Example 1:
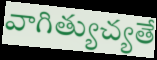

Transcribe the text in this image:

వాగిత్యుచ్యతే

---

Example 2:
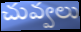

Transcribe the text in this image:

చువ్వలు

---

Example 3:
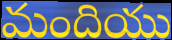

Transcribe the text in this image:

మందియు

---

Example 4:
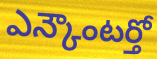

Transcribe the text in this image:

ఎన్కౌంటర్తో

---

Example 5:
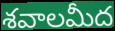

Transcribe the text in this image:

శవాలమీద